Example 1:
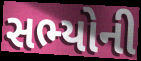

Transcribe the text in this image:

સભ્યોની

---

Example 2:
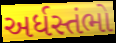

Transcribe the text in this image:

અર્ધસ્તંભો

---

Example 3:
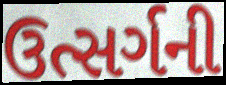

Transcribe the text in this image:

ઉત્સર્ગની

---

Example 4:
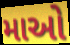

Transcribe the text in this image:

માઓ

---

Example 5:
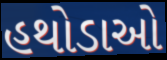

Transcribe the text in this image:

હથોડાઓ